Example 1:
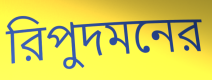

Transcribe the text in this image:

রিপুদমনের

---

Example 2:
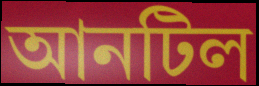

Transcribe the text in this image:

আনটিল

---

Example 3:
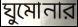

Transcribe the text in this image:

ঘুমোনার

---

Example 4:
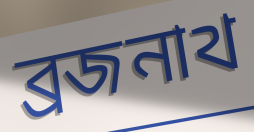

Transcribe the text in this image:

ব্রজনাথ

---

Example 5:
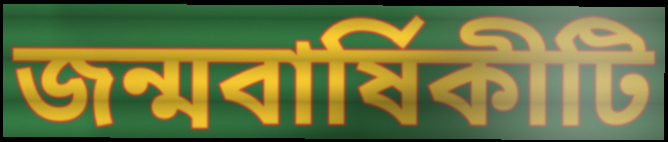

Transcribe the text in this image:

জন্মবার্ষিকীটি